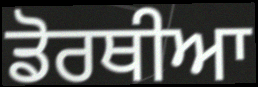
ਡੋਰਥੀਆ